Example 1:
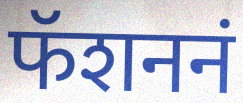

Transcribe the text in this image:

फॅशननं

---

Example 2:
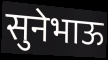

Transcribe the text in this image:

सुनेभाऊ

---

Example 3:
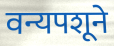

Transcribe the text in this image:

वन्यपशूने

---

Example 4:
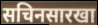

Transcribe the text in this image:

सचिनसारखा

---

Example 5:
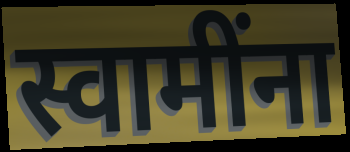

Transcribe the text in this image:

स्वामींना